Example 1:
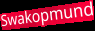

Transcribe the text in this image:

Swakopmund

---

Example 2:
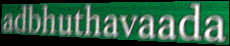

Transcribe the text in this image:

adbhuthavaada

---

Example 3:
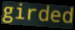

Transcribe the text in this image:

girded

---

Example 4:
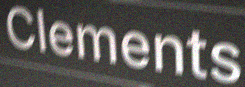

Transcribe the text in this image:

Clements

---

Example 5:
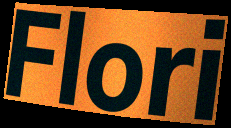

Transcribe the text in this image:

Flori